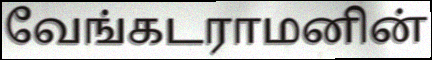
வேங்கடராமனின்